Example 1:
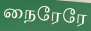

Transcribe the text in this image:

நைரேரே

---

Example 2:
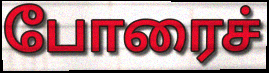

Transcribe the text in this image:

போரைச்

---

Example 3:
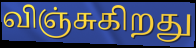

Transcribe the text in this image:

விஞ்சுகிறது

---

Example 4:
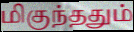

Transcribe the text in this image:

மிகுந்ததும்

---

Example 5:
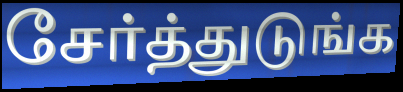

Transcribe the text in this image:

சேர்த்துடுங்க